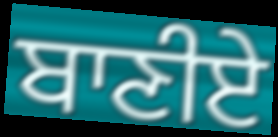
ਬਾਣੀਏ